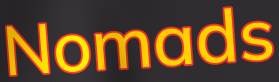
Nomads